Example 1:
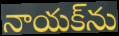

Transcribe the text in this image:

నాయక్‌ను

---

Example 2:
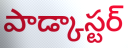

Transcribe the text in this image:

పాడ్కాస్టర్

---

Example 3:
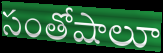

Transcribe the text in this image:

సంతోషాలూ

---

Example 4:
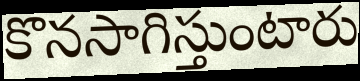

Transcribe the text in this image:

కొనసాగిస్తుంటారు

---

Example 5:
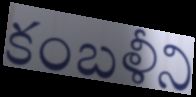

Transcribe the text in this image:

కంబళీని